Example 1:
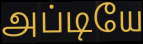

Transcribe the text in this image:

அப்டியே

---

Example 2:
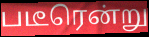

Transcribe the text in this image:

படீரென்று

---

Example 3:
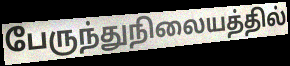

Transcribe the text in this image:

பேருந்துநிலையத்தில்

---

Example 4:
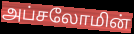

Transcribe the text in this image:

அப்சலோமின்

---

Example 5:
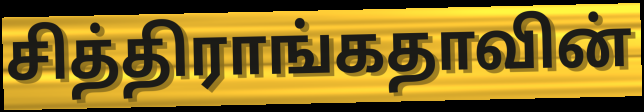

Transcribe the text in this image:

சித்திராங்கதாவின்